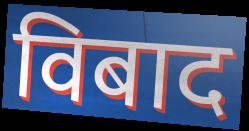
विबाद